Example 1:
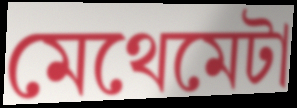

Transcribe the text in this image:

মেথেমেটা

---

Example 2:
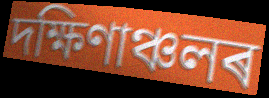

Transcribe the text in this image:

দক্ষিণাঞ্চলৰ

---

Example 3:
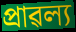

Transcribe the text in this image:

প্ৰাৱল্য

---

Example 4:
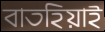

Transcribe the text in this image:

বাতহিয়াই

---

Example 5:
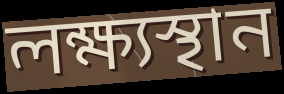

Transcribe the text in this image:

লক্ষ্যস্থান